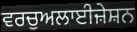
ਵਰਚੁਅਲਾਈਜ਼ੇਸ਼ਨ